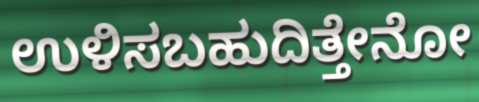
ಉಳಿಸಬಹುದಿತ್ತೇನೋ